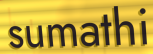
sumathi